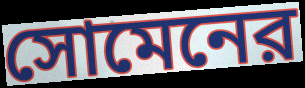
সোমেনের